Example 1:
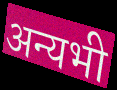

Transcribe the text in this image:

अन्यभी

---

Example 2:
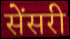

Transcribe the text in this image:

सेंसरी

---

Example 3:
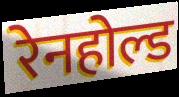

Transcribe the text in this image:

रेनहोल्ड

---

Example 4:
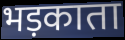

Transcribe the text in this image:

भड़काता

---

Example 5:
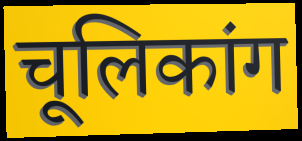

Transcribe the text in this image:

चूलिकांग